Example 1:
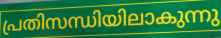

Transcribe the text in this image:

പ്രതിസന്ധിയിലാകുന്നു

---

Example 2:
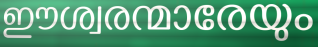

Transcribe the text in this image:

ഈശ്വരന്മാരേയും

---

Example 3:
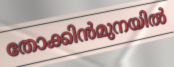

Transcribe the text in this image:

തോക്കിൻമുനയിൽ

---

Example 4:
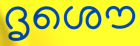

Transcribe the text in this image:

ദൃശൌ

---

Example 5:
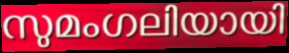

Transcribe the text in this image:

സുമംഗലിയായി